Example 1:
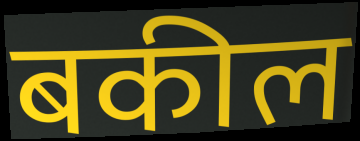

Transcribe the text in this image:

बकील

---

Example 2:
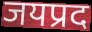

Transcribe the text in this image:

जयप्रद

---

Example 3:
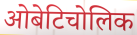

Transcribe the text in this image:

ओबेटिचोलिक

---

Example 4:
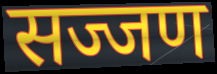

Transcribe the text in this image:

सज्जण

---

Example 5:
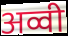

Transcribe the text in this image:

अव्वी